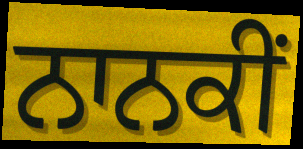
ਨਾਨਕੀਂ